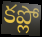
కప్లో